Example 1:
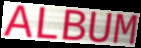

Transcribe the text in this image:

ALBUM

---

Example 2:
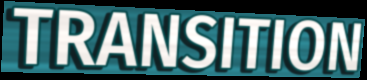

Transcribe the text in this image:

TRANSITION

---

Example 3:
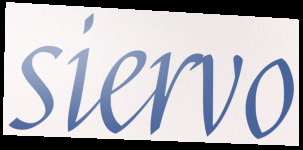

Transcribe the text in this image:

siervo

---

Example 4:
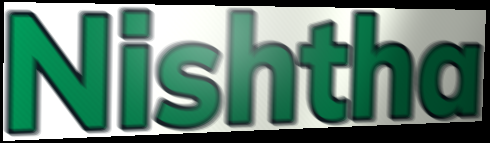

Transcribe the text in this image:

Nishtha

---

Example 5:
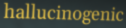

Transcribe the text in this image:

hallucinogenic